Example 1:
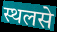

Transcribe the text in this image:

स्थलसे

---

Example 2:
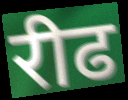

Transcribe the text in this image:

रीढ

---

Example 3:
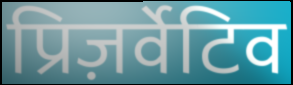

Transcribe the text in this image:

प्रिज़र्वेटिव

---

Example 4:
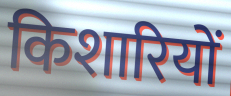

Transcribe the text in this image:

किशारियों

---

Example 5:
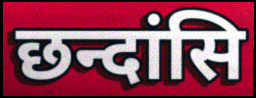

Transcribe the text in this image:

छन्दांसि